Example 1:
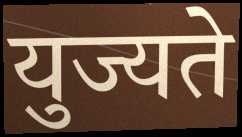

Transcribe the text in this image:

युज्यते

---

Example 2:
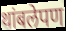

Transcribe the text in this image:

थांबलेपण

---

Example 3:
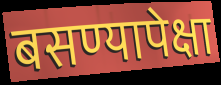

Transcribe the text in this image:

बसण्यापेक्षा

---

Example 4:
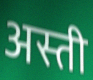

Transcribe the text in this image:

अस्ती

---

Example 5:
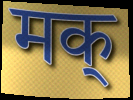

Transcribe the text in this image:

मक्